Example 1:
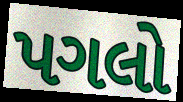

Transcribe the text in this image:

પગલો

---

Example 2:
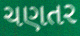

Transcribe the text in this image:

ચણતર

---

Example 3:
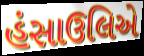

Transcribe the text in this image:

હંસાઉલિએ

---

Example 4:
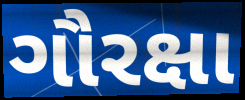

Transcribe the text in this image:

ગૌરક્ષા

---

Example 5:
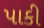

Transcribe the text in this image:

પાકી